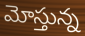
మోస్తున్న